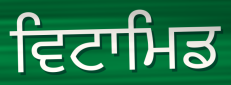
ਵਿਟਾਮਿਡ